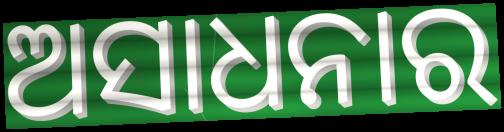
ଅସାଧନାର